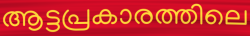
ആട്ടപ്രകാരത്തിലെ